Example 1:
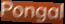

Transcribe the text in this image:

Pongal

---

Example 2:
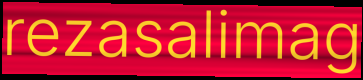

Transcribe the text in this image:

rezasalimag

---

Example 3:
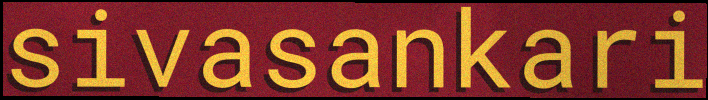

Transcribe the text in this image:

sivasankari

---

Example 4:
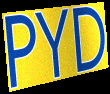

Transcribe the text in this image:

PYD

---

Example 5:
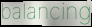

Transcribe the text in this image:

balancing